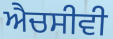
ਐਚਸੀਵੀ